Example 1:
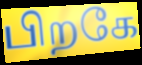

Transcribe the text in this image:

பிறகே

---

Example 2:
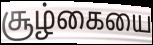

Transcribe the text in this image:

சூழ்கையை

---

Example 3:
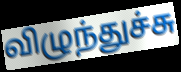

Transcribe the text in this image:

விழுந்துச்சு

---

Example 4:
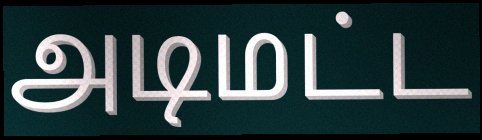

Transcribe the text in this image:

அடிமட்ட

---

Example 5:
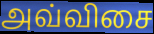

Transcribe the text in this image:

அவ்விசை